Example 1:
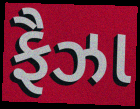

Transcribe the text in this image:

ફૈઝા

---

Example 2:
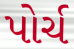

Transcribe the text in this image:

પોર્ચ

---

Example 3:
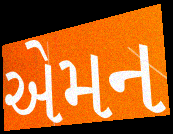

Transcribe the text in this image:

એમન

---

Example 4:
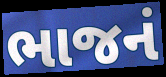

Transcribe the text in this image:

ભાજનં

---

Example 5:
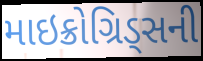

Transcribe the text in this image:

માઇક્રોગ્રિડ્સની